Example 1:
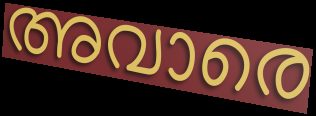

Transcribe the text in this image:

അവാരെ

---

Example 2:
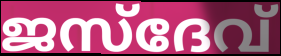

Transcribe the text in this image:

ജസ്ദേവ്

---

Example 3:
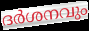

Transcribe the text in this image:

ദർശനവും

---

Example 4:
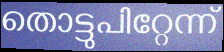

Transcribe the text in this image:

തൊട്ടുപിറ്റേന്ന്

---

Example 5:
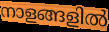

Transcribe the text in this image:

നാളങ്ങളിൽ